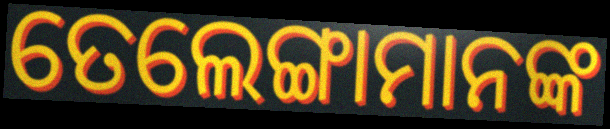
ତେଲେଙ୍ଗାମାନଙ୍କ